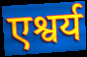
एश्वर्य